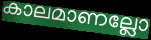
കാലമാണല്ലോ